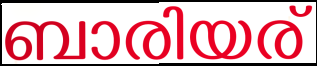
ബാരിയര്